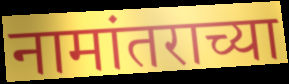
नामांतराच्या